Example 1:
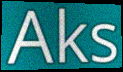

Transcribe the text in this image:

Aks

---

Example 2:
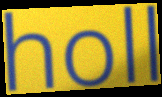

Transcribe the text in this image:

holl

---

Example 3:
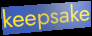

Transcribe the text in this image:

keepsake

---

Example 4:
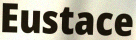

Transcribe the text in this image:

Eustace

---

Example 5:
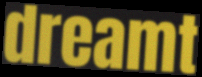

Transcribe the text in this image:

dreamt